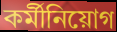
কর্মীনিয়োগ